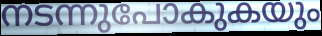
നടന്നുപോകുകയും